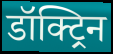
डॉक्ट्रिन